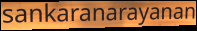
sankaranarayanan